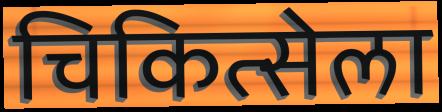
चिकित्सेला